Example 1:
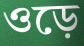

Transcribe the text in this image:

ওড়ে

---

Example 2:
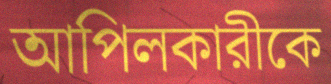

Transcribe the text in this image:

আপিলকারীকে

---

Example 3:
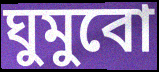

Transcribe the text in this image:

ঘুমুবো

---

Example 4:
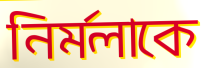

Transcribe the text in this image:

নির্মলাকে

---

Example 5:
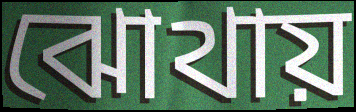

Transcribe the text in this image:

ঝোথায়